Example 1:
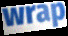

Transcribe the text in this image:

wrap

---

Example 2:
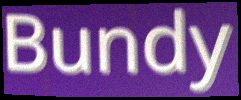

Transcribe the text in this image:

Bundy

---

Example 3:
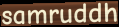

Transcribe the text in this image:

samruddh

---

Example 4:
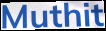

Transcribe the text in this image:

Muthit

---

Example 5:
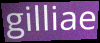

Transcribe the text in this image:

gilliae